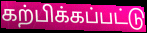
கற்பிக்கப்பட்டு